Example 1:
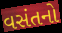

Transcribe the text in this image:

વસંતનો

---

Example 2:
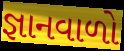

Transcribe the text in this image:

જ્ઞાનવાળો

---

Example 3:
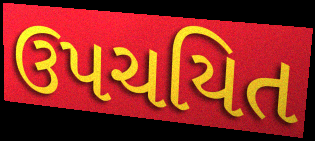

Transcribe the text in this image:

ઉપચયિત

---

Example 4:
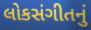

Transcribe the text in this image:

લોકસંગીતનું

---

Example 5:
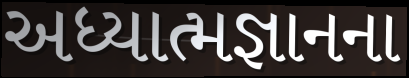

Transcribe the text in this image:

અધ્યાત્મજ્ઞાનના